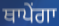
ਥਾਪੇਂਗਾ